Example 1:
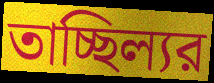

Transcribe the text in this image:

তাচ্ছিল্যর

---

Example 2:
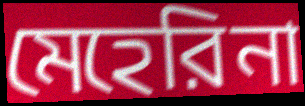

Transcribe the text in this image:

মেহেরিনা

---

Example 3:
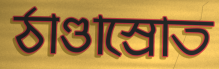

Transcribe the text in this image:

ঠাণ্ডাস্রোত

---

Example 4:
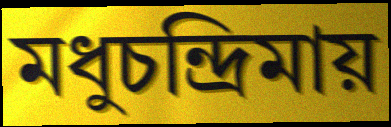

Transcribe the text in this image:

মধুচন্দ্রিমায়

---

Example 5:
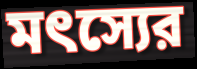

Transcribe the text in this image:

মৎস্যের